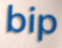
bip